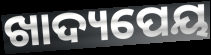
ଖାଦ୍ୟପେୟ